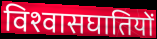
विश्वासघातियों